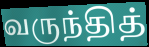
வருந்தித்